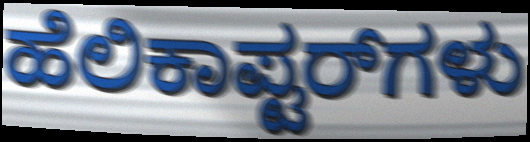
ಹೆಲಿಕಾಪ್ಟರ್‌ಗಳು